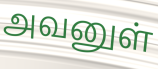
அவனுள்